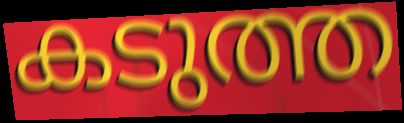
കടുത്ത